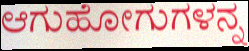
ಆಗುಹೋಗುಗಳನ್ನ